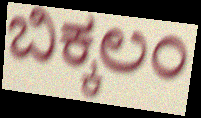
ಬಿಕ್ಕಲಂ